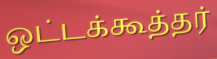
ஒட்டக்கூத்தர்